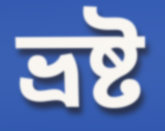
ভ্রষ্ট